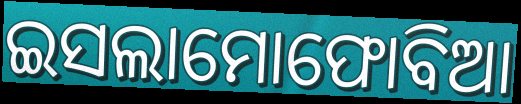
ଇସଲାମୋଫୋବିଆ